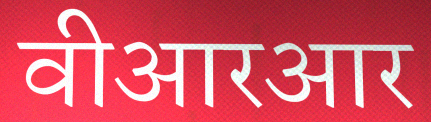
वीआरआर